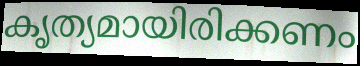
കൃത്യമായിരിക്കണം